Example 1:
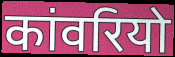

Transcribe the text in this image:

कांवरियो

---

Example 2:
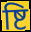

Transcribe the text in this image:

ष्टि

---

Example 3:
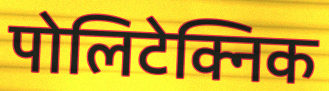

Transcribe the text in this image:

पोलिटेक्निक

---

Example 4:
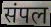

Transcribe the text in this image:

संपल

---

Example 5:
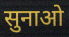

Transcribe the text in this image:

सुनाओ